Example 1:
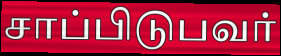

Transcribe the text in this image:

சாப்பிடுபவர்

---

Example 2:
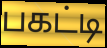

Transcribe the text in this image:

பகட்டி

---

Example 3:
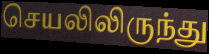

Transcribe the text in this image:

செயலிலிருந்து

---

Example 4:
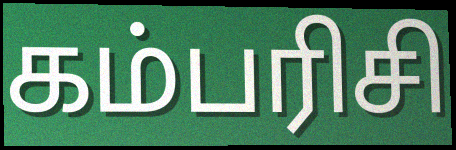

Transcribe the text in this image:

கம்பரிசி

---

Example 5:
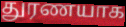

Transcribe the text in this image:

துரணயாக